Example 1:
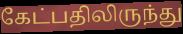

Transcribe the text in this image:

கேட்பதிலிருந்து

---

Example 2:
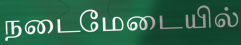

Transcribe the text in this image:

நடைமேடையில்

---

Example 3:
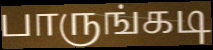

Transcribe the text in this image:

பாருங்கடி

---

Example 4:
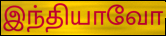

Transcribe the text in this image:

இந்தியாவோ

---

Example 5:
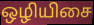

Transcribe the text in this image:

ஒழியிசை